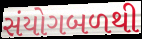
સંયોગબળથી